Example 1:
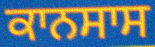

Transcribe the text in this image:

ਕਾਨਸਾਸ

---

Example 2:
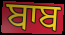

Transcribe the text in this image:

ਬਾਬ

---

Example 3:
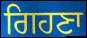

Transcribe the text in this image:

ਗਿਹਣਾ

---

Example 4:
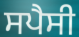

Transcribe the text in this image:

ਸਪੈਸੀ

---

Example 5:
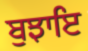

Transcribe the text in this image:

ਬੁਝਾਇ